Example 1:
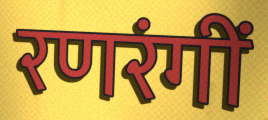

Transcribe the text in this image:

रणरंगीं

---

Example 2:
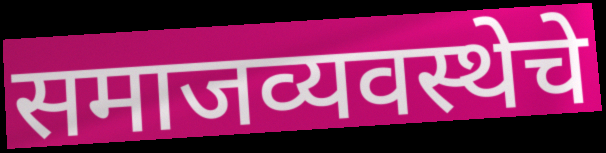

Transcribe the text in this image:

समाजव्यवस्थेचे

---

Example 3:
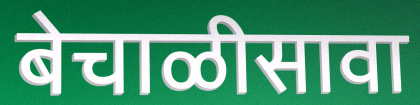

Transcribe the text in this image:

बेचाळीसावा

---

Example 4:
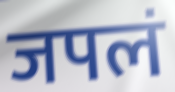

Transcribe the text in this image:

जपलं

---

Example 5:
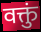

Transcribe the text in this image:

वक्तुं